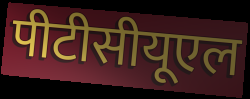
पीटीसीयूएल